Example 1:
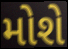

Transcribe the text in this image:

મોશે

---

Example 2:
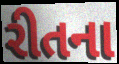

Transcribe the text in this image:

રીતના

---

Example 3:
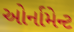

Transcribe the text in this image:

ઓર્નામેન્ટ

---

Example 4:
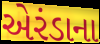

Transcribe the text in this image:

એરંડાના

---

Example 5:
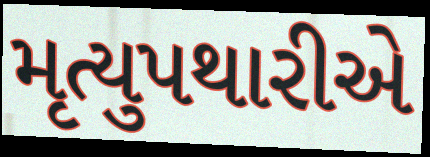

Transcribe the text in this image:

મૃત્યુપથારીએ